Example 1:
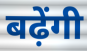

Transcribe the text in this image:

बढ़ेंगी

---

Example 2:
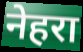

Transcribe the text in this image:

नेहरा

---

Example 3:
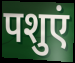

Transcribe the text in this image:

पशुएं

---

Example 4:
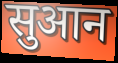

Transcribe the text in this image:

सुआन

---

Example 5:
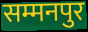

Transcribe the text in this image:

सम्मनपुर